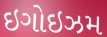
ઇગોઇઝમ